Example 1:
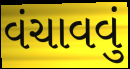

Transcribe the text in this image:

વંચાવવું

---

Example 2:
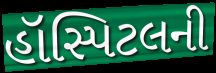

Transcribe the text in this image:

હૉસ્પિટલની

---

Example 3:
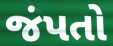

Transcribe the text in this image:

જંપતો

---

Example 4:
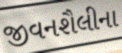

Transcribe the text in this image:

જીવનશૈલીના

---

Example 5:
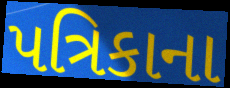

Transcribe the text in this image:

પત્રિકાના